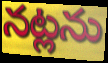
నట్లను